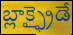
బ్లాక్ఫ్రైడే